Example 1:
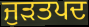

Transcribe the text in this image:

ਜੁੜਤਪਦ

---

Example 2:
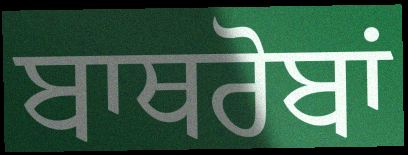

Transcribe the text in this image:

ਬਾਥਰੋਬਾਂ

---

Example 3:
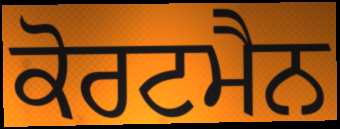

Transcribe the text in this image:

ਕੋਰਟਮੈਨ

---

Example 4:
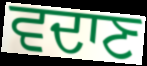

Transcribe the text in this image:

ਵਦਾਣ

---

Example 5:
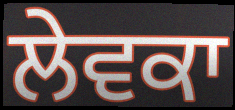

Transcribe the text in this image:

ਲੇਵਕਾ